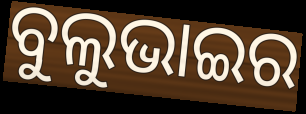
ବୁଲୁଭାଇର